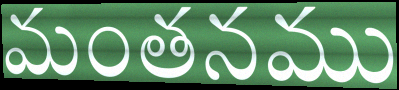
మంతనము